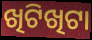
ଖିଟିଖିଟା